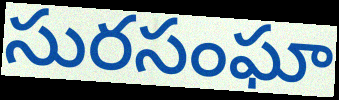
సురసంఘా